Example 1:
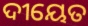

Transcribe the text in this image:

ଦୀୟେତ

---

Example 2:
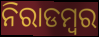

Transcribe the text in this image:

ନିରାଡମ୍ବର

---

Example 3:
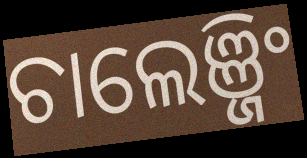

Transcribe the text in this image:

ଚାଲେଞ୍ଜିଂ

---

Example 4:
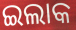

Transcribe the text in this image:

ଇଲାକ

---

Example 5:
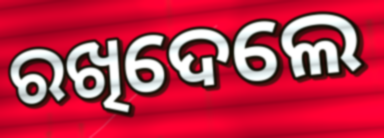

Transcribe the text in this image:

ରଖିଦେଲେ